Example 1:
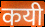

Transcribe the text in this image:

कयी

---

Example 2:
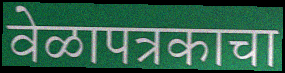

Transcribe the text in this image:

वेळापत्रकाचा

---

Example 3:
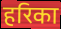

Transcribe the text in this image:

हरिका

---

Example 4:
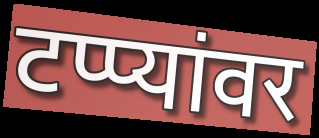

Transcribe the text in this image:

टप्प्यांवर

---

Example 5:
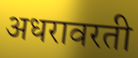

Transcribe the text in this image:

अधरावरती